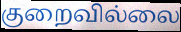
குறைவில்லை